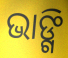
ଭାଙ୍ଗି